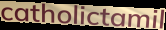
catholictamil